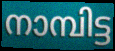
നാമ്പിട്ട